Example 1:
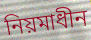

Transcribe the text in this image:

নিয়মাধীন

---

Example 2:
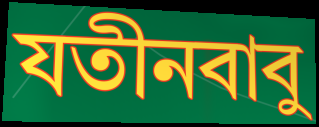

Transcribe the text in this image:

যতীনবাবু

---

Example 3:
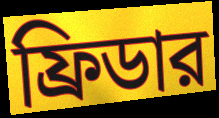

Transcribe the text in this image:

ফ্রিডার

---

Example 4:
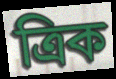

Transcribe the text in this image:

ত্রিক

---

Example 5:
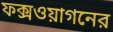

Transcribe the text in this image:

ফক্সওয়াগনের